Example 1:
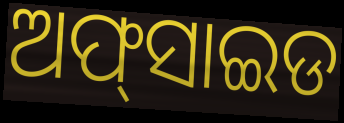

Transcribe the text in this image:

ଅଫ୍‍ସାଇଡ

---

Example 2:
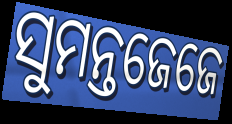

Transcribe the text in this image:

ସୁମନ୍ତଜେଜେ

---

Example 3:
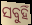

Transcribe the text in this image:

ସବୁହିଁ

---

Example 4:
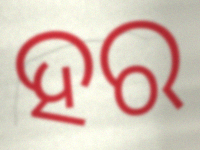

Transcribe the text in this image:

ହର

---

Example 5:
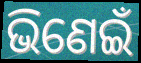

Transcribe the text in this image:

ଭିଣେଇଁ